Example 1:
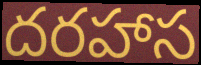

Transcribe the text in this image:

దరహాస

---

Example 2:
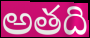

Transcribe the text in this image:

అతది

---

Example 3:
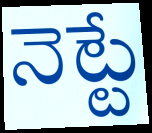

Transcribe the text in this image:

నెట్టే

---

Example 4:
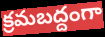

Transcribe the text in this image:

క్రమబద్దంగా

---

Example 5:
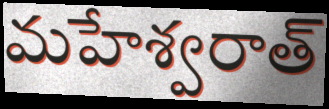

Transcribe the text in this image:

మహేశ్వరాత్